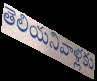
తెలియనివాళ్లకు